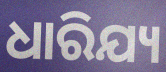
ଧାରିଯ୍ୟ